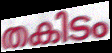
തകിടം